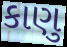
કાણુ